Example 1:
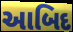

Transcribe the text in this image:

આબિદ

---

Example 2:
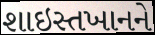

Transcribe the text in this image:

શાઇસ્તખાનને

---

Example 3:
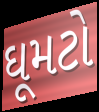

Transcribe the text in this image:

ઘૂમટો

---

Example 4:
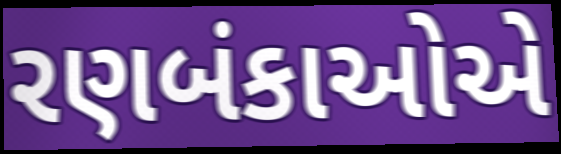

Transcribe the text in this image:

રણબંકાઓએ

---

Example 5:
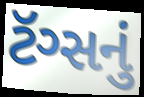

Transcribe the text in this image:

ટૅગ્સનું